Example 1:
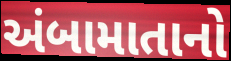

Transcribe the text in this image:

અંબામાતાનો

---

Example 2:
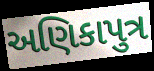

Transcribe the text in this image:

અણિકાપુત્ર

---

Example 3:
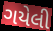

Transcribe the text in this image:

ગયેલી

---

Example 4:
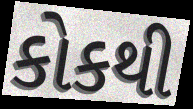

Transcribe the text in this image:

કોકથી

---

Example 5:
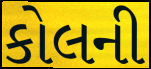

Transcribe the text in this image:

કોલની